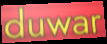
duwar